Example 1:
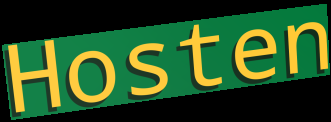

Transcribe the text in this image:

Hosten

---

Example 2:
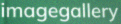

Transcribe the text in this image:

imagegallery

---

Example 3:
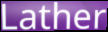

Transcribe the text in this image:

Lather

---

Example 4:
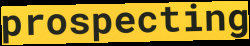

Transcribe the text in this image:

prospecting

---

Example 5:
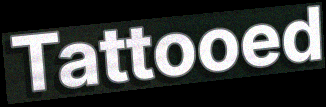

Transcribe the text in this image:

Tattooed